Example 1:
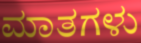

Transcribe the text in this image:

ಮಾತಗಳು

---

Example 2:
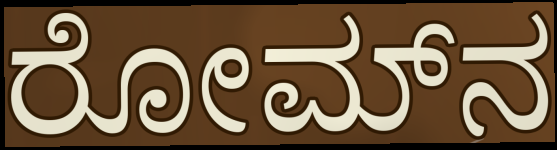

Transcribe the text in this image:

ರೋಮ್‌ನ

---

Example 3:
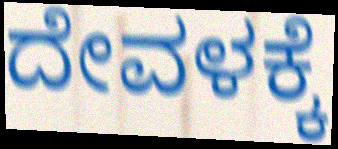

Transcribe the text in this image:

ದೇವಳಕ್ಕೆ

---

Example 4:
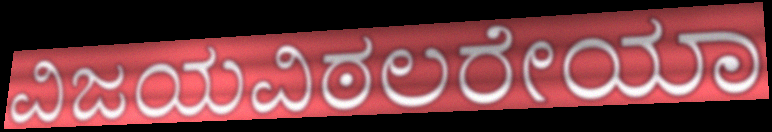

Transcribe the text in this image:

ವಿಜಯವಿಠಲರೇಯಾ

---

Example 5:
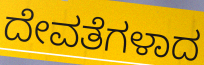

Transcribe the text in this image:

ದೇವತೆಗಳಾದ